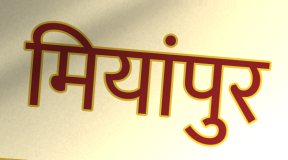
मियांपुर